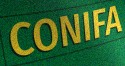
CONIFA